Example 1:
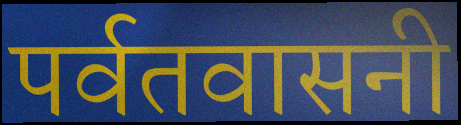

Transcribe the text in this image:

पर्वतवासनी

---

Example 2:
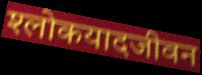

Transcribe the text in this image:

श्लोकयादजीवन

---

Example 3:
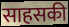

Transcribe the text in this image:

साहसकी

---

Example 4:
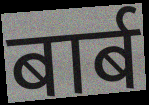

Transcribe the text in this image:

बार्ब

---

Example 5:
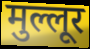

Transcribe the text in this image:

मुल्लूर